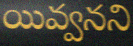
యివ్వనని